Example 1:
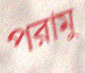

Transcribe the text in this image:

পরামু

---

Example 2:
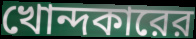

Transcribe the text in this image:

খোন্দকারের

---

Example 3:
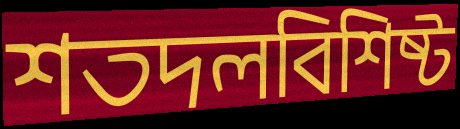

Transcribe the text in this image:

শতদলবিশিষ্ট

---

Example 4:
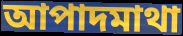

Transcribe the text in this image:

আপাদমাথা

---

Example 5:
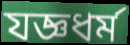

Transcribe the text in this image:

যজ্ঞধর্ম